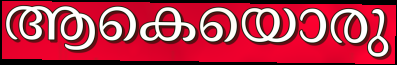
ആകെയൊരു